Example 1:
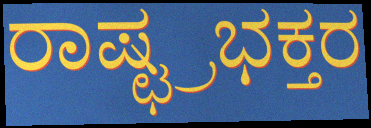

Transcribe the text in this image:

ರಾಷ್ಟ್ರಭಕ್ತರ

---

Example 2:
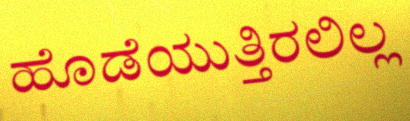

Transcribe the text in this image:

ಹೊಡೆಯುತ್ತಿರಲಿಲ್ಲ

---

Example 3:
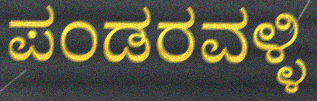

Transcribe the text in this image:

ಪಂಡರವಳ್ಳಿ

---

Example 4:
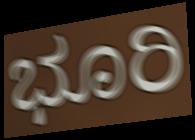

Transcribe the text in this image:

ಭೂರಿ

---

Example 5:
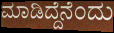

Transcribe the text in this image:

ಮಾಡಿದ್ದೆನೆಂದು